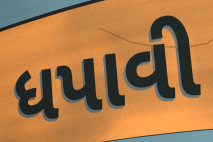
ધપાવી